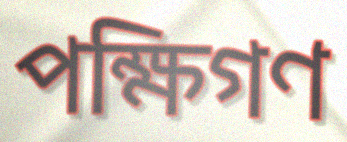
পক্ষিগণ